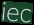
iec